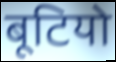
बूटियो